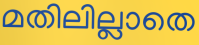
മതിലില്ലാതെ